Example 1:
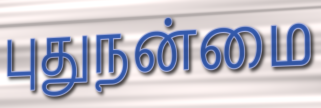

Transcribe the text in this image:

புதுநன்மை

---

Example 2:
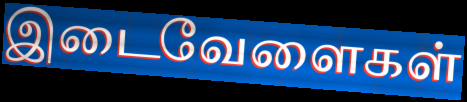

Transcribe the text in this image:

இடைவேளைகள்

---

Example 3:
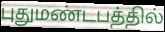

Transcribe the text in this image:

புதுமண்டபத்தில்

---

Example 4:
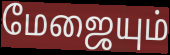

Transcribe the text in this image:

மேஜையும்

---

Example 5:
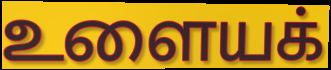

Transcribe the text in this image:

உளையக்